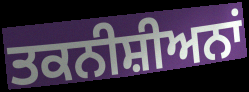
ਤਕਨੀਸ਼ੀਅਨਾਂ